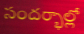
సందర్భాల్లో